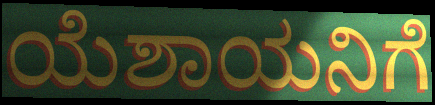
ಯೆಶಾಯನಿಗೆ